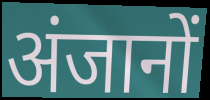
अंजानों